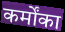
कर्मोंका